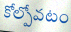
కోల్పోవటం